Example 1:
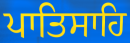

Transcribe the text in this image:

ਪਾਤਿਸਾਹਿ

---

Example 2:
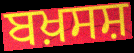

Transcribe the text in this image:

ਬਖ਼ਸਸ਼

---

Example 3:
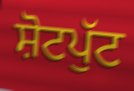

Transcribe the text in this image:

ਸ਼ੋਟਪੁੱਟ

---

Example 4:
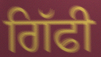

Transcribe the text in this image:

ਗਿੱਫੀ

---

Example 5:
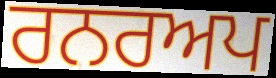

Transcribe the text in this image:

ਰਨਰਅਪ